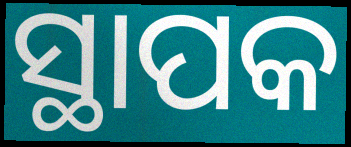
ସ୍ଥାପକ